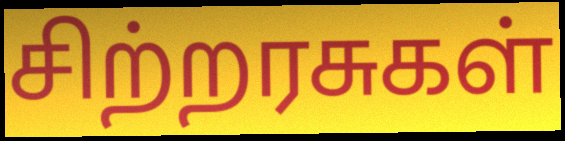
சிற்றரசுகள்